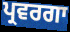
ਪ੍ਰਵਰਗਾ